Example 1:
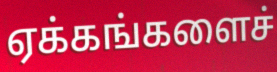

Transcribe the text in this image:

ஏக்கங்களைச்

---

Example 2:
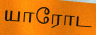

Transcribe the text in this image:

யாரோட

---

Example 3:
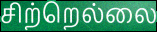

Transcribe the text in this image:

சிற்றெல்லை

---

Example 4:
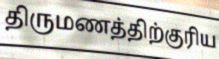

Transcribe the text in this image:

திருமணத்திற்குரிய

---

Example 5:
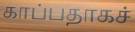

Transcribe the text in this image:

காப்பதாகச்